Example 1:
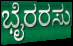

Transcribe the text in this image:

ಭೈರರಸು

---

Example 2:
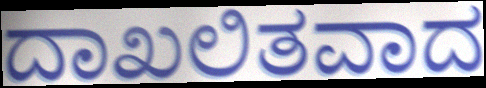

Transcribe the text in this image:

ದಾಖಲಿತವಾದ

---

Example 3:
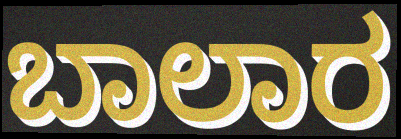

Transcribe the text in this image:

ಬಾಲಾರ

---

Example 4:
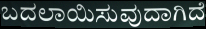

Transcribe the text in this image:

ಬದಲಾಯಿಸುವುದಾಗಿದೆ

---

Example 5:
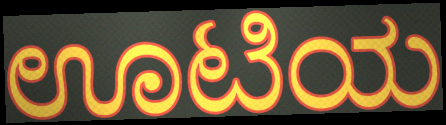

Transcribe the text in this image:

ಊಟಿಯ